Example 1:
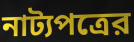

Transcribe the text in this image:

নাট্যপত্রের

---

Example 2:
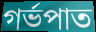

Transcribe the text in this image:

গর্ভপাত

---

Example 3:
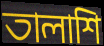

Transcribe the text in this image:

তালাশি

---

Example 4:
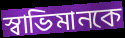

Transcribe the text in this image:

স্বাভিমানকে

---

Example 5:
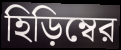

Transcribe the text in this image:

হিড়িম্বের